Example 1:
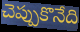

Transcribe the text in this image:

చెప్పుకొనేది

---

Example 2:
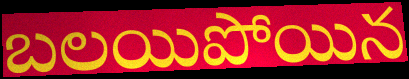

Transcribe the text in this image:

బలయిపోయిన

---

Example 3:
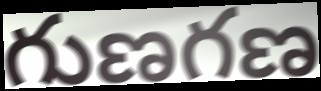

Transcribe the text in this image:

గుణగణ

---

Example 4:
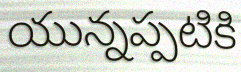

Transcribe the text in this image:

యున్నప్పటికి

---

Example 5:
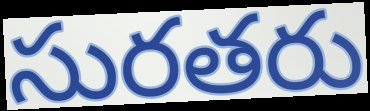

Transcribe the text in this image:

సురతరు